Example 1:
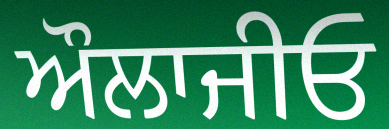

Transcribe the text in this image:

ਔਲਾਜੀਓ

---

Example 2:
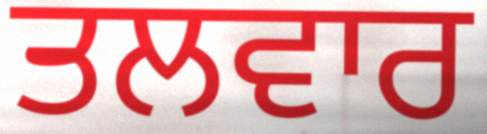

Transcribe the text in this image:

ਤਲਵਾਰ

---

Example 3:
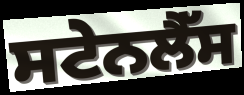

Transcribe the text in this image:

ਸਟੇਨਲੈੱਸ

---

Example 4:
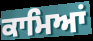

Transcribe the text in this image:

ਕਾਮਿਆਂ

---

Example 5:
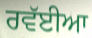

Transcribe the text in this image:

ਰਵੱਈਆ